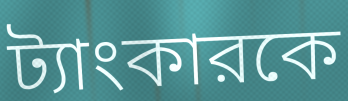
ট্যাংকারকে